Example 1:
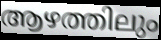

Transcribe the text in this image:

ആഴത്തിലും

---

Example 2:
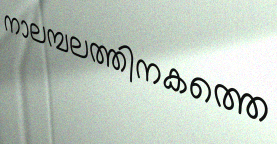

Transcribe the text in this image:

നാലമ്പലത്തിനകത്തെ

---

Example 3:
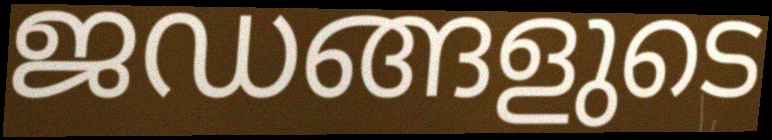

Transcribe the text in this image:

ജഡങ്ങളുടെ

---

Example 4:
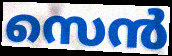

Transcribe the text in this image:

സെൻ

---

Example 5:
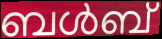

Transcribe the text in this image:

ബൾബ്